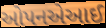
ઓપનએઆઈ